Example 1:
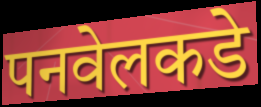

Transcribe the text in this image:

पनवेलकडे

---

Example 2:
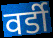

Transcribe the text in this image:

वर्डी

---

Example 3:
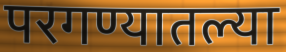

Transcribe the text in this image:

परगण्यातल्या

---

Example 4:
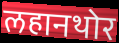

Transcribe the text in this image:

लहानथोर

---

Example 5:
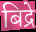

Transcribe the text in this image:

बिद्रे